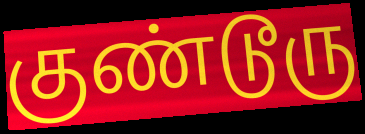
குண்டூரு